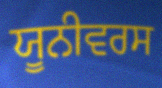
ਯੂਨੀਵਰਸ